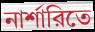
নার্শারিতে